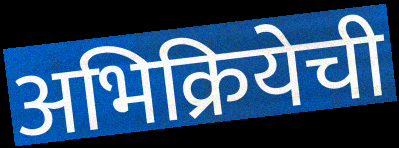
अभिक्रियेची